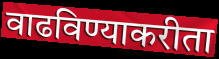
वाढविण्याकरीता